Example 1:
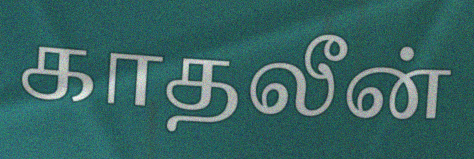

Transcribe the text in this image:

காதலீன்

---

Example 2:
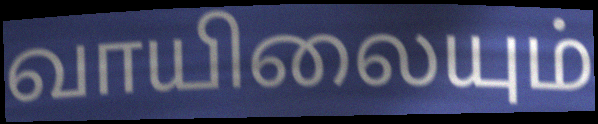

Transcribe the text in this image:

வாயிலையும்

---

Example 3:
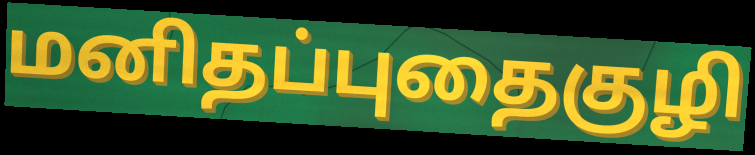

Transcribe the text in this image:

மனிதப்புதைகுழி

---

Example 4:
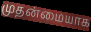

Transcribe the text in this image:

முதன்மையாக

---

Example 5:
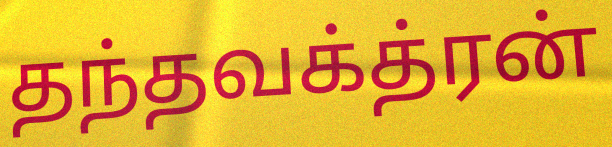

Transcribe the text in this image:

தந்தவக்த்ரன்